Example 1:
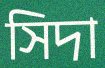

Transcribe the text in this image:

সিদা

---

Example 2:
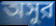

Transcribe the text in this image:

অসুর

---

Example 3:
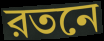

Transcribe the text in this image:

রতনে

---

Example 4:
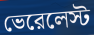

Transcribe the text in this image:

ভেরেলেস্ট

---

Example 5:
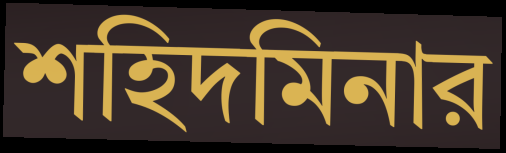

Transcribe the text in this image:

শহিদমিনার